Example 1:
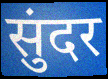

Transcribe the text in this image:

सुंदर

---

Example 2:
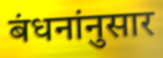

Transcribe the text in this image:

बंधनांनुसार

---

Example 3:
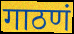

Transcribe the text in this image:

गाठणं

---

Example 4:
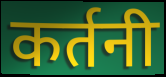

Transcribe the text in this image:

कर्तनी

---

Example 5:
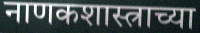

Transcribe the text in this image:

नाणकशास्त्राच्या